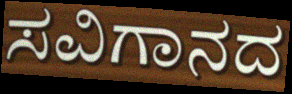
ಸವಿಗಾನದ